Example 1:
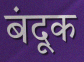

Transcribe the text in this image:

बंदूक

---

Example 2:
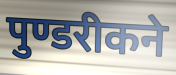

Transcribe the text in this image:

पुण्डरीकने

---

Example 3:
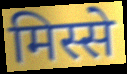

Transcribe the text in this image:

मिस्से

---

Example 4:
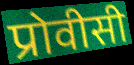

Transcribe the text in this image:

प्रोवीसी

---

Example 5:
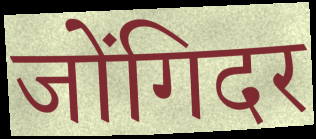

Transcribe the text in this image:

जोंगिदर